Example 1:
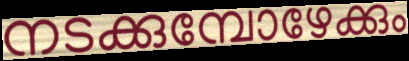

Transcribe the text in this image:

നടക്കുമ്പോഴേക്കും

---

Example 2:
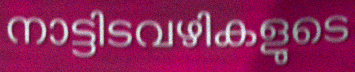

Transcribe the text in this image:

നാട്ടിടവഴികളുടെ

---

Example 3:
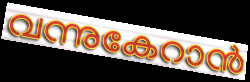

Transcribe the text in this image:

വന്നുകേറാൻ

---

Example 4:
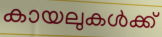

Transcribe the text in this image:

കായലുകൾക്ക്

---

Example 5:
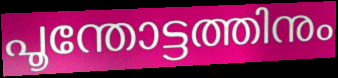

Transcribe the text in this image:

പൂന്തോട്ടത്തിനും